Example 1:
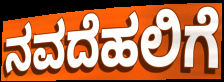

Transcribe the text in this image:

ನವದೆಹಲಿಗೆ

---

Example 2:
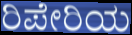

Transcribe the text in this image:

ರಿಪೇರಿಯ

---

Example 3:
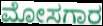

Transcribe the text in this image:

ಮೋಸಗಾರ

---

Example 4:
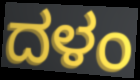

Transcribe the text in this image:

ದಳಂ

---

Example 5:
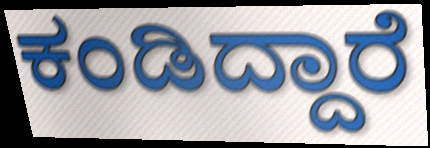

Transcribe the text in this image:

ಕಂಡಿದ್ದಾರೆ